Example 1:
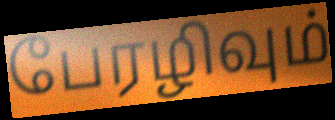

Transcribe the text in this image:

பேரழிவும்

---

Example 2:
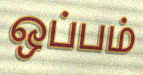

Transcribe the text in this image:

ஒப்பம்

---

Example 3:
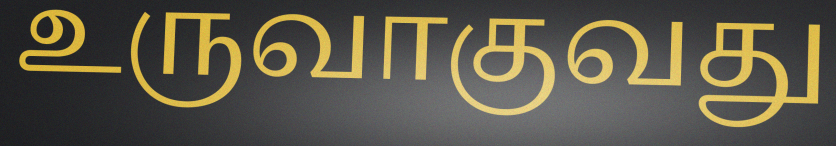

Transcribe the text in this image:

உருவாகுவது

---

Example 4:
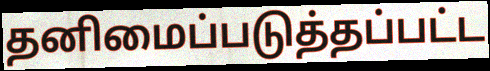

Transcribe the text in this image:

தனிமைப்படுத்தப்பட்ட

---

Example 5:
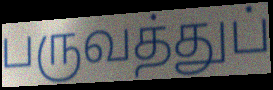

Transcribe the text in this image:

பருவத்துப்